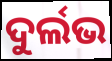
ଦୁର୍ଲଭ